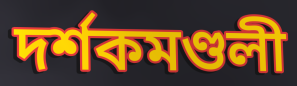
দর্শকমণ্ডলী